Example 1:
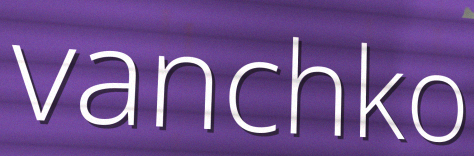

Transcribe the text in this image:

vanchko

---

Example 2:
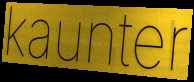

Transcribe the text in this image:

kaunter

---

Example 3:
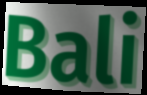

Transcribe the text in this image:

Bali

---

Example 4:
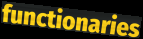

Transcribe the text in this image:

functionaries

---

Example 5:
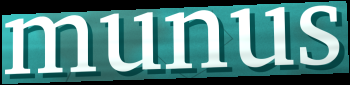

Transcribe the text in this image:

munus